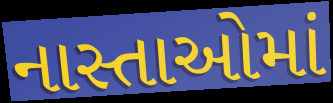
નાસ્તાઓમાં